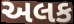
અલક